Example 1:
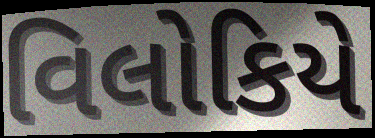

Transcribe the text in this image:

વિલોકિયે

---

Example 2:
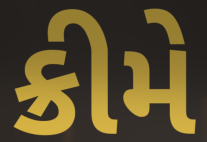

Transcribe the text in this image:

ક્રીમે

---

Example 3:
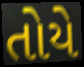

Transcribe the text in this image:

તોયે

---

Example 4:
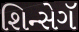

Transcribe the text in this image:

શિન્સેગૅ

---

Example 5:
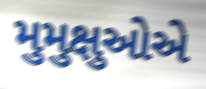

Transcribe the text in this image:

મુમુક્ષુઓએ